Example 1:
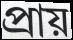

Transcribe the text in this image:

প্ৰায়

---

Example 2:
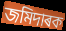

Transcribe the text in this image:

জমিদাৰক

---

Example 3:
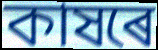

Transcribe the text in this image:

কাষৰে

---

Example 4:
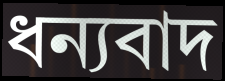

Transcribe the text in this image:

ধন্যবাদ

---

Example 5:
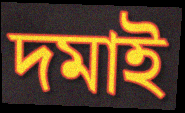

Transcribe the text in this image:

দমাই